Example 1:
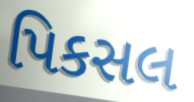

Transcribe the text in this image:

પિકસલ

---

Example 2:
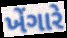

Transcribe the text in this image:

ખેંગારે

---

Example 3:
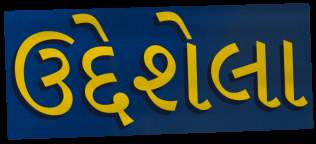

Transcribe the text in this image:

ઉદ્દેશેલા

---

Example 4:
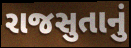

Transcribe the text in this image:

રાજસુતાનું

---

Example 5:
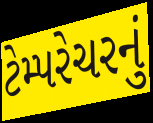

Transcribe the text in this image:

ટેમ્પરેચરનું